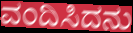
ವಂದಿಸಿದನು